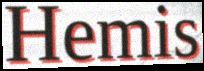
Hemis